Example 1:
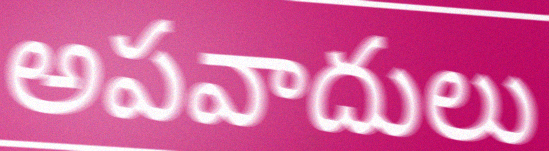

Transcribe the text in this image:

అపవాదులు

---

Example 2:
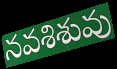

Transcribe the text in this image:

నవశిశువు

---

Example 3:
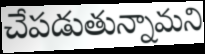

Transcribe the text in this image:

చేపడుతున్నామని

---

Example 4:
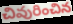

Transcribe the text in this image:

చివురించిన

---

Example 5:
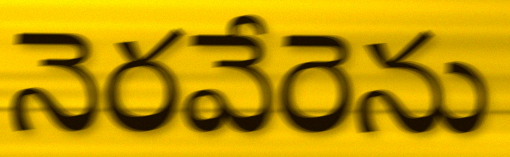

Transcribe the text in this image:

నెరవేరెను